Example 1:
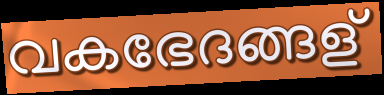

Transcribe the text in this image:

വകഭേദങ്ങള്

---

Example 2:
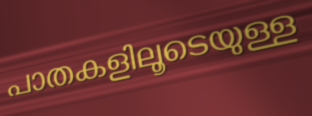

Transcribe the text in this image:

പാതകളിലൂടെയുള്ള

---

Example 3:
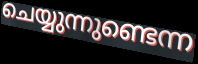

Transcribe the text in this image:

ചെയ്യുന്നുണ്ടെന്ന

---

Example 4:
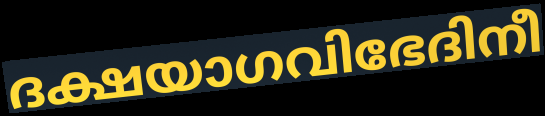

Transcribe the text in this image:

ദക്ഷയാഗവിഭേദിനീ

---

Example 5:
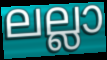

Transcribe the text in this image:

ലല്ലാ